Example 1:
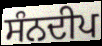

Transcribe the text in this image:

ਸੰਨਦੀਪ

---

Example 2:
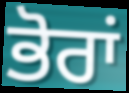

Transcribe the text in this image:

ਭੋਰਾਂ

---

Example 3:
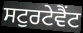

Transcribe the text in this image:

ਸਟੁਰਟੇਵੈਂਟ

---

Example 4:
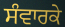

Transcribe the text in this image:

ਸੰਵਾਰਕੇ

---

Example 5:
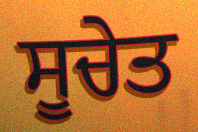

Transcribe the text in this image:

ਸੂਚੇਤ